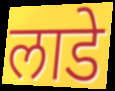
लाडे